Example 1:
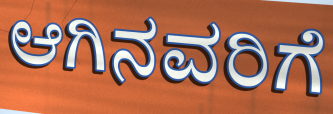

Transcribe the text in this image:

ಆಗಿನವರಿಗೆ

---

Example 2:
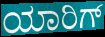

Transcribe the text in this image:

ಯಾರಿಗ್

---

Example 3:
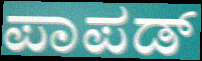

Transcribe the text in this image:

ಪಾಪಡ್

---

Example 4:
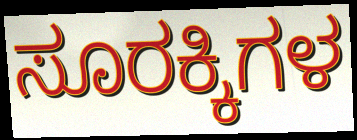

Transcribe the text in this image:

ಸೂರಕ್ಕಿಗಳ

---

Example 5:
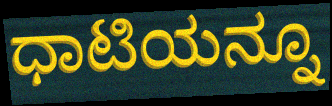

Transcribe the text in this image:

ಧಾಟಿಯನ್ನೂ